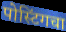
पोस्टिंगचा